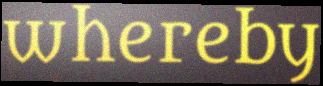
whereby